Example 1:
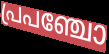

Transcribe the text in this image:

പ്രപഞ്ചോ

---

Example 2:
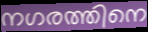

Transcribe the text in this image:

നഗരത്തിനെ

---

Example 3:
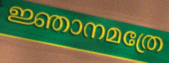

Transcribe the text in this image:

ജ്ഞാനമത്രേ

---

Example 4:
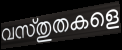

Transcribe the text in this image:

വസ്തുതകളെ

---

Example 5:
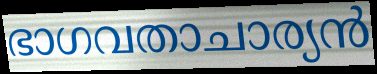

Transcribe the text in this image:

ഭാഗവതാചാര്യൻ